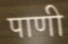
पाणी